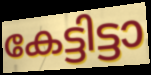
കേട്ടിട്ടാ